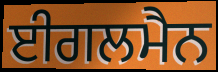
ਈਗਲਮੈਨ